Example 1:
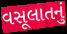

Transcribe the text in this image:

વસૂલાતનું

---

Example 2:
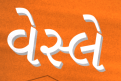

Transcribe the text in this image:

વેસ્લે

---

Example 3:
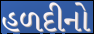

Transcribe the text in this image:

હળદીનો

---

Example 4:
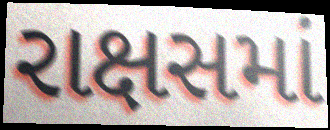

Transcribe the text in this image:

રાક્ષસમાં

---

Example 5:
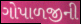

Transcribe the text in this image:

ગોપાળજીની